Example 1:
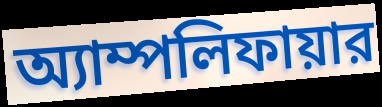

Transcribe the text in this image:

অ্যাম্পলিফায়ার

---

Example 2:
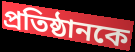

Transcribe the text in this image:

প্রতিষ্ঠানকে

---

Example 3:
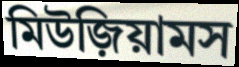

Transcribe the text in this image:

মিউজ়িয়ামস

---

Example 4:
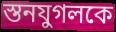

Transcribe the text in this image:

স্তনযুগলকে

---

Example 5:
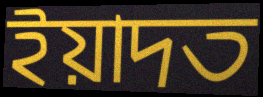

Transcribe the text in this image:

ইয়াদত